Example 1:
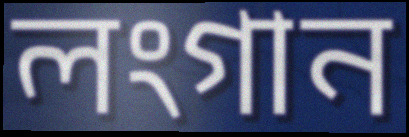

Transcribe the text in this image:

লংগান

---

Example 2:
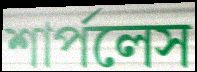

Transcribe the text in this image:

শার্পলেস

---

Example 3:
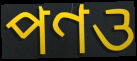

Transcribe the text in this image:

পণও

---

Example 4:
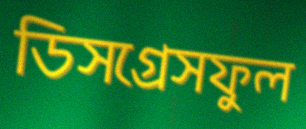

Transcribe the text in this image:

ডিসগ্রেসফুল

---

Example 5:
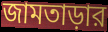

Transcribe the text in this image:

জামতাড়ার